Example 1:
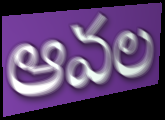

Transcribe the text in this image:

ఆవల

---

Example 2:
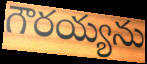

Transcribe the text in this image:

గౌరయ్యను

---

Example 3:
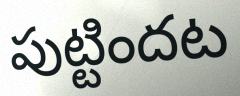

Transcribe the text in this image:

పుట్టిందట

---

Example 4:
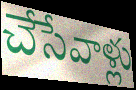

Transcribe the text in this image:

చేసేవాళ్లు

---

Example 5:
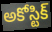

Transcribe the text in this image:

అకోస్టిక్